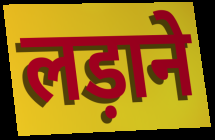
लड़ाने